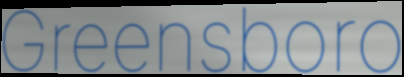
Greensboro